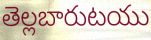
తెల్లబారుటయు